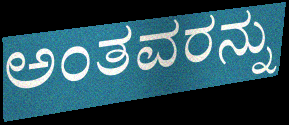
ಅಂತವರನ್ನು